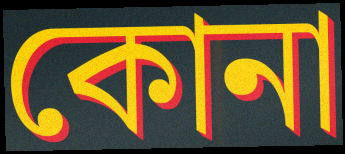
কোনা